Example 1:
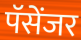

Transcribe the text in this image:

पॅसेंजर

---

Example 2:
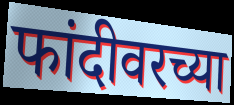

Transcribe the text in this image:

फांदीवरच्या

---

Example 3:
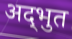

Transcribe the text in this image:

अद्‍भुत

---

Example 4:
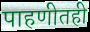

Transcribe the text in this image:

पाहणीतही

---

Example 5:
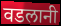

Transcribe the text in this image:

वडलानी